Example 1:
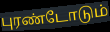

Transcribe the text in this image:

புரண்டோடும்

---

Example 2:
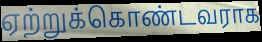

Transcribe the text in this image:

ஏற்றுக்கொண்டவராக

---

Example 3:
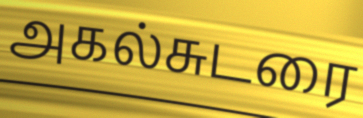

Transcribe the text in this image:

அகல்சுடரை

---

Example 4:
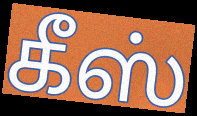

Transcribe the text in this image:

கீஸ்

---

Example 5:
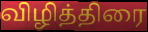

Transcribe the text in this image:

விழித்திரை